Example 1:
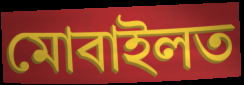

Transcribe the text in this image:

মোবাইলত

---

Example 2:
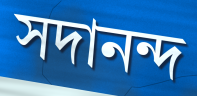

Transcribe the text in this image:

সদানন্দ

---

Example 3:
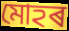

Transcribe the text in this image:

মোহৰ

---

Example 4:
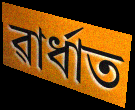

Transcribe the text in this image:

ৱাৰ্ধাত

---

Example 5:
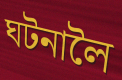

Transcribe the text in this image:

ঘটনালৈ